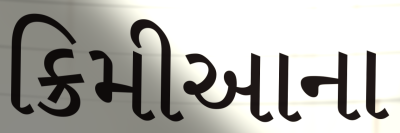
ક્રિમીઆના